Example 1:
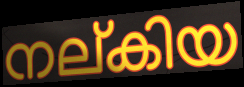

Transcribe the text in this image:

നല്കിയ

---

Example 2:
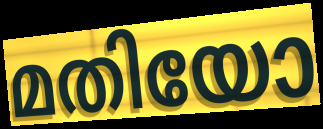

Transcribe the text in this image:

മതിയോ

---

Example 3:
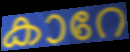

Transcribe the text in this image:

കാറേ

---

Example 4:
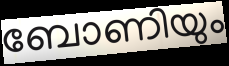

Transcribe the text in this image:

ബോണിയും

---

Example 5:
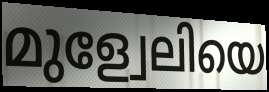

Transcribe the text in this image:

മുള്വേലിയെ